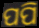
ପପି